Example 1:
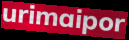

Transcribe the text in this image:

urimaipor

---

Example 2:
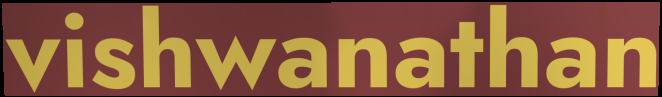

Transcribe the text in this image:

vishwanathan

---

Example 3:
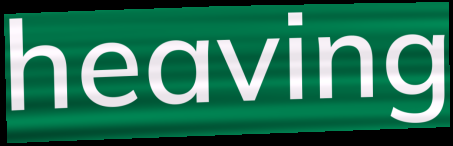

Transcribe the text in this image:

heaving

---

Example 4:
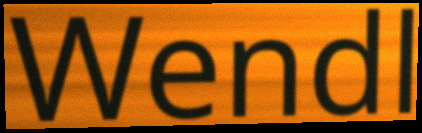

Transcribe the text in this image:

Wendl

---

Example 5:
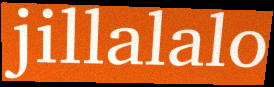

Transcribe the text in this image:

jillalalo